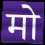
मो